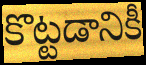
కొట్టడానికీ